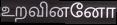
உறவினனோ